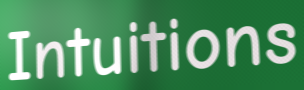
Intuitions